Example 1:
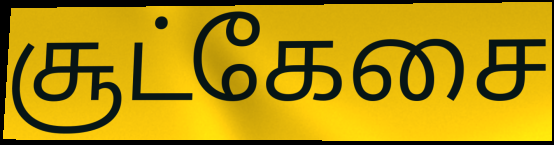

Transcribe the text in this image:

சூட்கேசை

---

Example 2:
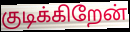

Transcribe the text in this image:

குடிக்கிறேன்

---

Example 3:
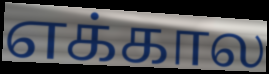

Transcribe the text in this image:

எக்கால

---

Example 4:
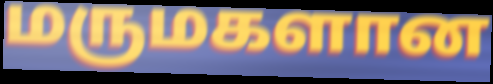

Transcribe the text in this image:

மருமகளான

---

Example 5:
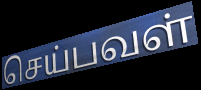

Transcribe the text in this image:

செய்பவள்